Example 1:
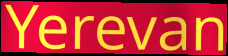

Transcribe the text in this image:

Yerevan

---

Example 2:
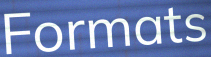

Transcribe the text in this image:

Formats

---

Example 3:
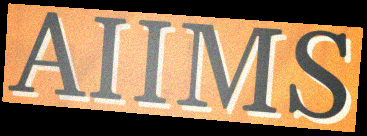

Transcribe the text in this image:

AIIMS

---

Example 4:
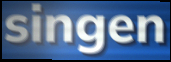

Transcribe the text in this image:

singen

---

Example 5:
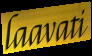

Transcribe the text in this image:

laavati